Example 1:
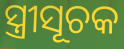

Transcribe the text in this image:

ସ୍ତ୍ରୀସୂଚକ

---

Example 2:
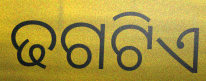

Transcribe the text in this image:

ଢଗଟିଏ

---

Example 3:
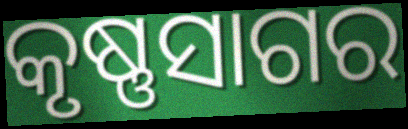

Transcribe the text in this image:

କୃଷ୍ଣସାଗର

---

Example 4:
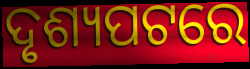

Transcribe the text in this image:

ଦୃଶ୍ୟପଟରେ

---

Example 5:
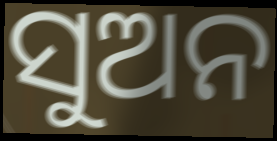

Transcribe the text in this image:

ସୁଅନ